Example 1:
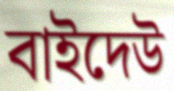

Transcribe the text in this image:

বাইদেউ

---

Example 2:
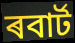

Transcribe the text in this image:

ৰবাৰ্ট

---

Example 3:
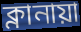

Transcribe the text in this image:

ক্নানায়া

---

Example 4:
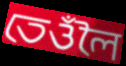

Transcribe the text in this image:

তেওঁলৈ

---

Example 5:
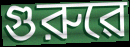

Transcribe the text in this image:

গুৰুৱে